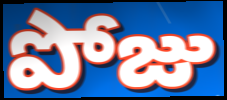
పోజు